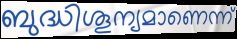
ബുദ്ധിശൂന്യമാണെന്ന്